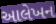
આલેખન